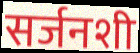
सर्जनशी